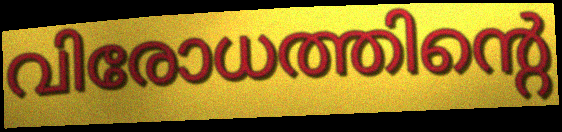
വിരോധത്തിന്റെ